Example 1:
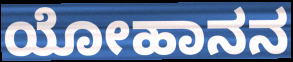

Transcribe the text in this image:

ಯೋಹಾನನ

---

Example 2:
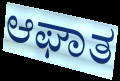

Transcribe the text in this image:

ಆಘಾತ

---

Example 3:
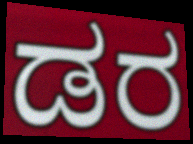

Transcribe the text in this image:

ಡರ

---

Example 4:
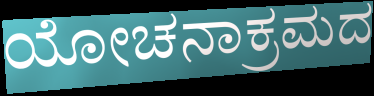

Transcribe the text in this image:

ಯೋಚನಾಕ್ರಮದ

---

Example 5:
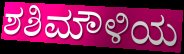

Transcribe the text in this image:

ಶಶಿಮೌಳಿಯ